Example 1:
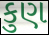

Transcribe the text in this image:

કુણ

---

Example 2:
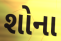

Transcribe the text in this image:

શોના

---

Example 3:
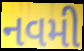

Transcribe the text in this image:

નવમી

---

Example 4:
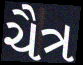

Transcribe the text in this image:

ચૈત્ર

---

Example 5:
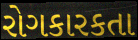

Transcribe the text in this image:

રોગકારકતા